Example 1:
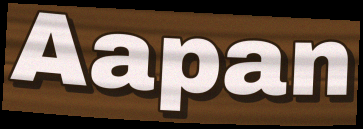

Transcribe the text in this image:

Aapan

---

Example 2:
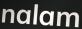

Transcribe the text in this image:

nalam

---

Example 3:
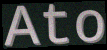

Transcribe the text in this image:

Ato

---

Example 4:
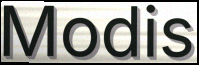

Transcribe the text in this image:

Modis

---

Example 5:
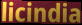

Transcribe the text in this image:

licindia